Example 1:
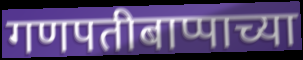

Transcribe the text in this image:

गणपतीबाप्पाच्या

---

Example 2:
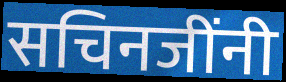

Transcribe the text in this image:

सचिनजींनी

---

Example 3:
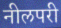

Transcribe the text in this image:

नीलपरी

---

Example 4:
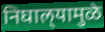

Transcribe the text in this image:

निघाल्यामुळे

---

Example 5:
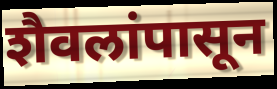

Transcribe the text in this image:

शैवलांपासून